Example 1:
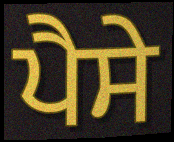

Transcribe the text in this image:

ਪੈਸੇ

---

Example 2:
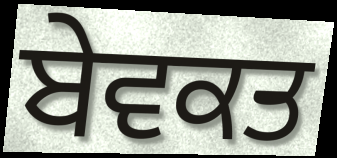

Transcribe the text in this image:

ਬੇਵਕਤ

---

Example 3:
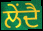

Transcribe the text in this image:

ਲੇਂਦੈ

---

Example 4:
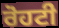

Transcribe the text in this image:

ਰੋਹਟੀ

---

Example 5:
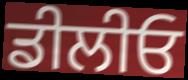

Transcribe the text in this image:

ਡੀਲੀਓ